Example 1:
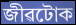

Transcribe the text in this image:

জীৱটোক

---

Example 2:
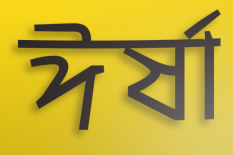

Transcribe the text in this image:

ঈৰ্ষা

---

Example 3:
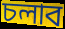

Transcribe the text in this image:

চলাব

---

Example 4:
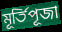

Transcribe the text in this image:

মূৰ্তিপূজা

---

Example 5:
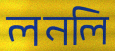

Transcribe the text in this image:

লনলি